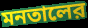
মনতালের